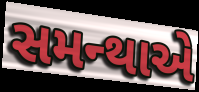
સમન્થાએ